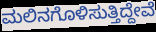
ಮಲಿನಗೊಳಿಸುತ್ತಿದ್ದೇವೆ